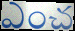
ఎంచ